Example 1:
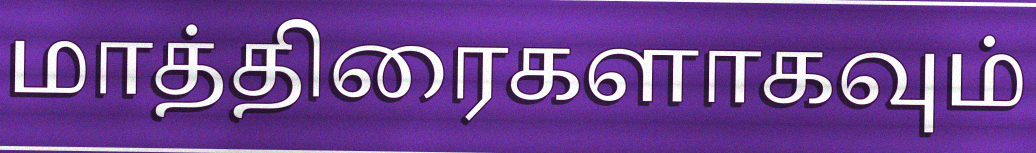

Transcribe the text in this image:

மாத்திரைகளாகவும்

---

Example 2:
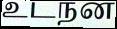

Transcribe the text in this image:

உடநன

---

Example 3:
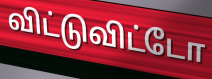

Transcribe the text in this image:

விட்டுவிட்டோ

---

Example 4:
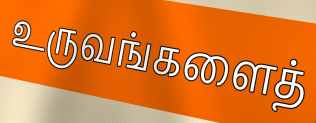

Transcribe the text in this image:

உருவங்களைத்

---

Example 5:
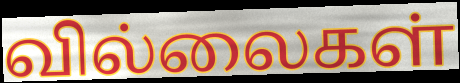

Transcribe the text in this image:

வில்லைகள்